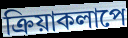
ক্রিয়াকলাপে